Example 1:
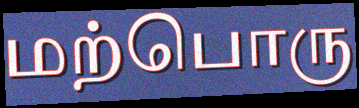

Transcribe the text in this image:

மற்பொரு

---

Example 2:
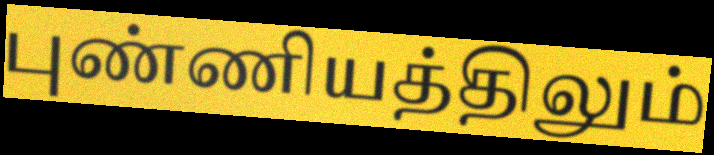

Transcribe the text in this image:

புண்ணியத்திலும்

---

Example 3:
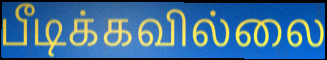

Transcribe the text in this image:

பீடிக்கவில்லை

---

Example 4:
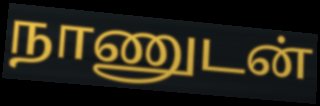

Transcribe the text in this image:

நாணுடன்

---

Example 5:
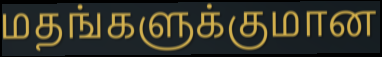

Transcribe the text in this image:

மதங்களுக்குமான